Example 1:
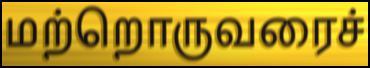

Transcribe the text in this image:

மற்றொருவரைச்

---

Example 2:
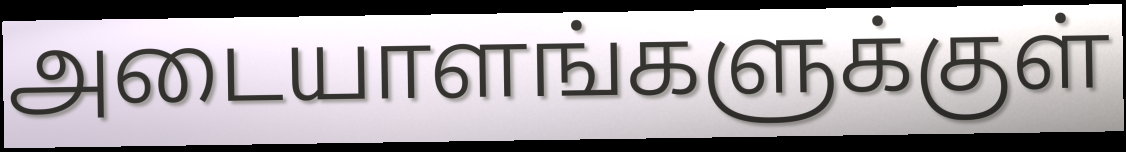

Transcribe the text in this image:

அடையாளங்களுக்குள்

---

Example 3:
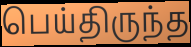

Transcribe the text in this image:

பெய்திருந்த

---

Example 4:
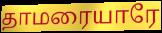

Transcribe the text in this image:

தாமரையாரே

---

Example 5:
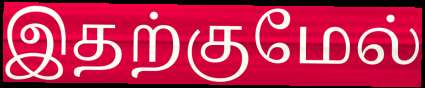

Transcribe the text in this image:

இதற்குமேல்